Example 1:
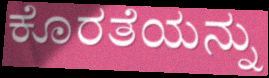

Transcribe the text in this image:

ಕೊರತೆಯನ್ನು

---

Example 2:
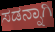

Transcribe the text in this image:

ಸಡನ್ನಾಗಿ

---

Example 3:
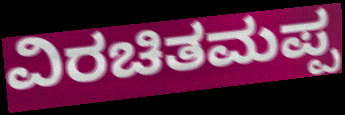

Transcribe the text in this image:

ವಿರಚಿತಮಪ್ಪ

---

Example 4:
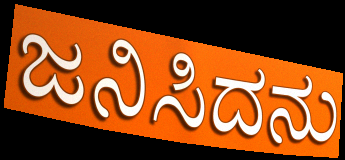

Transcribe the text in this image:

ಜನಿಸಿದನು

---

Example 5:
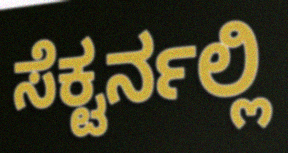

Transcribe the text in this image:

ಸೆಕ್ಟರ್ನಲ್ಲಿ